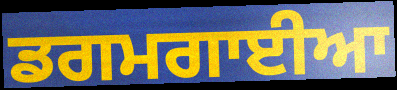
ਡਗਮਗਾਈਆ